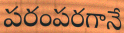
పరంపరగానే